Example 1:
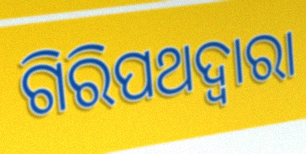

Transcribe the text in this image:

ଗିରିପଥଦ୍ୱାରା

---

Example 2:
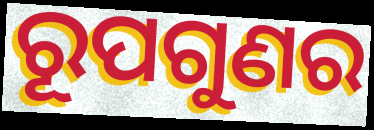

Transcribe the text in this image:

ରୂପଗୁଣର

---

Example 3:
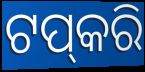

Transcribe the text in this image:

ଟପ୍‌କରି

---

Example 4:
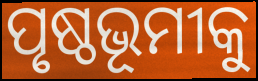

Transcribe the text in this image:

ପୃଷ୍ଠଭୂମୀକୁ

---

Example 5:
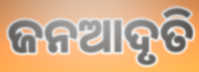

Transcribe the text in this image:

ଜନଆଦୃତି